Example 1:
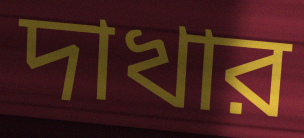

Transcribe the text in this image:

দাখার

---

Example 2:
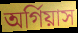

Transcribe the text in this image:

অর্গিয়াস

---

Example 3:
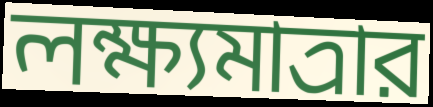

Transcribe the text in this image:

লক্ষ্যমাত্রার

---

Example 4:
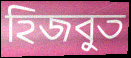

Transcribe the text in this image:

হিজবুত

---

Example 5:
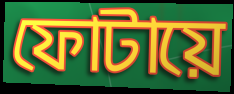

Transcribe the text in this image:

ফোটায়ে